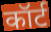
कॉर्ट